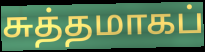
சுத்தமாகப்